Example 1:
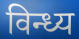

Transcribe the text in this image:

विन्ध्य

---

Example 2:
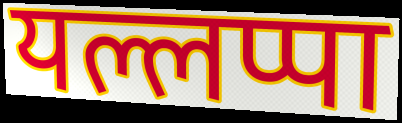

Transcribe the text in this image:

यल्लप्पा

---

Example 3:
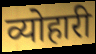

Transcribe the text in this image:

व्योहारी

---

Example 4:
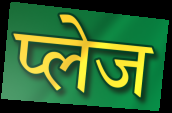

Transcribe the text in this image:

प्‍लेज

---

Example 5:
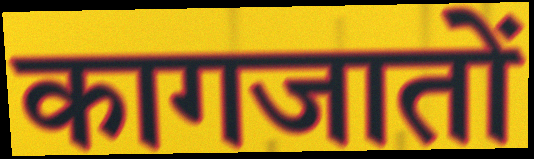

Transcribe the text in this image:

कागजातों